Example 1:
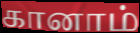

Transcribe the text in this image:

கானாம்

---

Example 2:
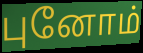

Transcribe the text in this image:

புனோம்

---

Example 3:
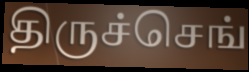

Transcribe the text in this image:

திருச்செங்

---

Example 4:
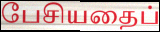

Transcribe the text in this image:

பேசியதைப்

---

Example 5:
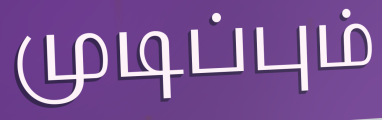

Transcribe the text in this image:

முடிப்பும்